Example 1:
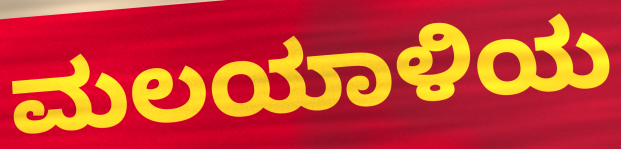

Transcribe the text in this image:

ಮಲಯಾಳಿಯ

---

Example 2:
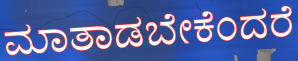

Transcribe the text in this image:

ಮಾತಾಡಬೇಕೆಂದರೆ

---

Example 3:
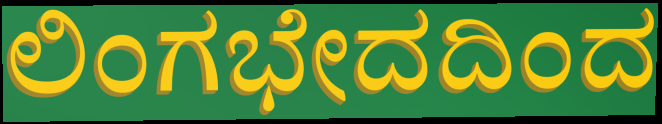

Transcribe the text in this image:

ಲಿಂಗಭೇದದಿಂದ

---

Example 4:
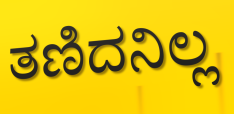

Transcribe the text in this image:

ತಣಿದನಿಲ್ಲ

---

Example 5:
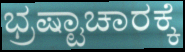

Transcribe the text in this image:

ಭ್ರಷ್ಟಾಚಾರಕ್ಕೆ